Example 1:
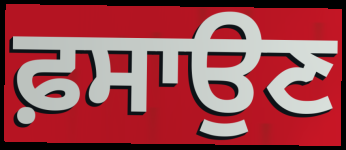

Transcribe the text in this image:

ਫ਼ਸਾਉਣ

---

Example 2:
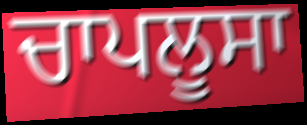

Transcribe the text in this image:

ਚਾਪਲੂਸਾ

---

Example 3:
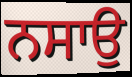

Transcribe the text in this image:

ਨਸਾਉ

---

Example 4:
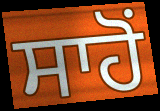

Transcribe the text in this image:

ਸਾਹੋਂ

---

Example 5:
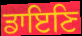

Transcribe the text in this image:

ਡਾਇਣਿ